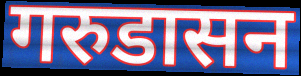
गरुडासन